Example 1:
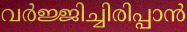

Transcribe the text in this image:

വർജ്ജിച്ചിരിപ്പാൻ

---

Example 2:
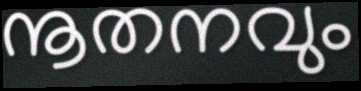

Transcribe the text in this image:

നൂതനവും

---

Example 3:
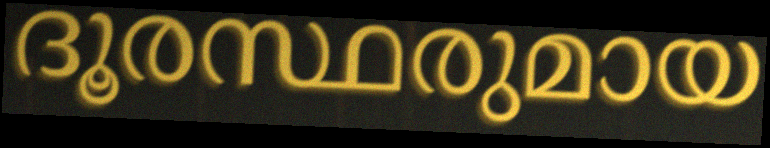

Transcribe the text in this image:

ദൂരസ്ഥരുമായ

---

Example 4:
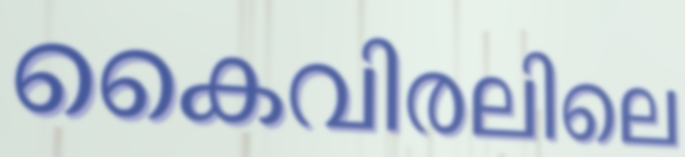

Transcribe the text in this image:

കൈവിരലിലെ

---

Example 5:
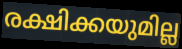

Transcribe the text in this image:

രക്ഷിക്കയുമില്ല